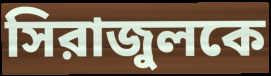
সিরাজুলকে